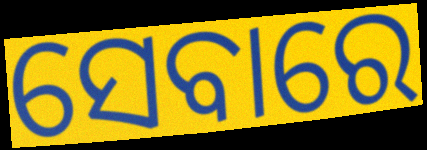
ସେବାରେ